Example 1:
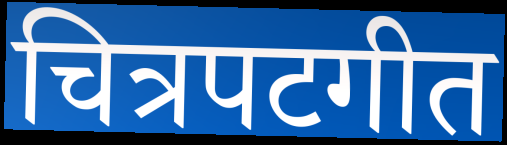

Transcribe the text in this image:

चित्रपटगीत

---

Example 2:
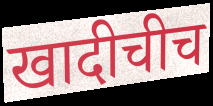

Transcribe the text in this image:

खादीचीच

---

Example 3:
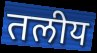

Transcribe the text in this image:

तलीय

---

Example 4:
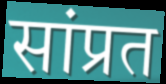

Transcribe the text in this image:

सांप्रत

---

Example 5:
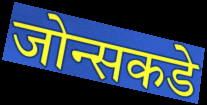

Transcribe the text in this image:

जोन्सकडे